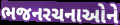
ભજનરચનાઓને